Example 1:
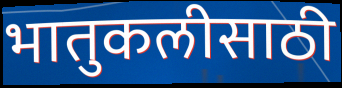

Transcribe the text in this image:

भातुकलीसाठी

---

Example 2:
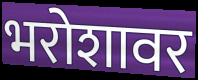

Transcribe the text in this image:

भरोशावर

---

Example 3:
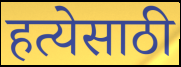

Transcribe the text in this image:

हत्येसाठी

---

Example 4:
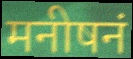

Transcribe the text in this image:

मनीषनं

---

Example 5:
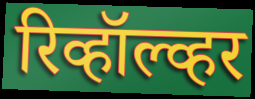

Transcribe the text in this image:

रिव्हॉल्व्हर